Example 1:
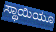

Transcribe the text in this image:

ಸ್ಥಾಯಿಯೂ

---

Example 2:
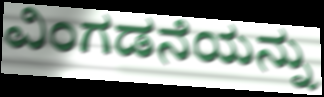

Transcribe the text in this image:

ವಿಂಗಡನೆಯನ್ನು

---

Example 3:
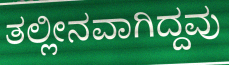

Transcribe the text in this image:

ತಲ್ಲೀನವಾಗಿದ್ದವು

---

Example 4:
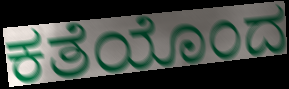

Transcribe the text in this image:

ಕತೆಯೊಂದ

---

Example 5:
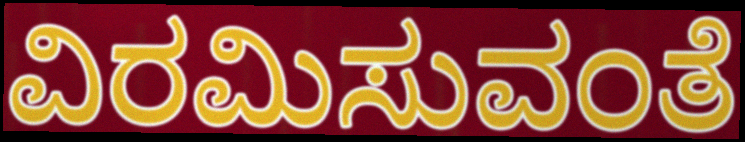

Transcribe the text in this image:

ವಿರಮಿಸುವಂತೆ